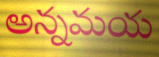
అన్నమయ